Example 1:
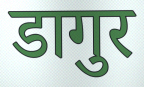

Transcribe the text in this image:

डागुर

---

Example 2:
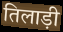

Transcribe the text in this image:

तिलाड़ी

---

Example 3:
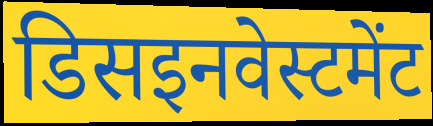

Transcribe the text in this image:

डिसइनवेस्टमेंट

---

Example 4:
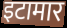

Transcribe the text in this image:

इटामार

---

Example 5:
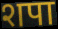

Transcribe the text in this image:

शपा